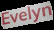
Evelyn